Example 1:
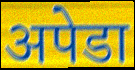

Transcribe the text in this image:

अपेडा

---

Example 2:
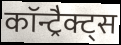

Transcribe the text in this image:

कॉन्ट्रैक्ट्स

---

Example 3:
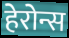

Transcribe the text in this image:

हेरोन्स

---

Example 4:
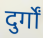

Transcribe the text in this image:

दुर्गों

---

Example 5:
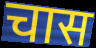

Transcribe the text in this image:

चास